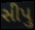
સીપુ